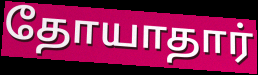
தோயாதார்